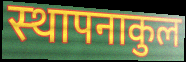
स्थापनाकुल